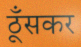
ठूँसकर